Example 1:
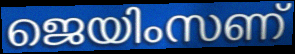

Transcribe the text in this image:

ജെയിംസണ്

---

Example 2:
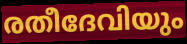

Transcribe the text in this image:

രതീദേവിയും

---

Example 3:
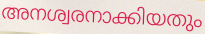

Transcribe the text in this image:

അനശ്വരനാക്കിയതും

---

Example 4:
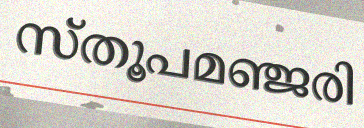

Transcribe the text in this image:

സ്തൂപമഞ്ജരി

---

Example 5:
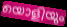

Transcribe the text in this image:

യൊളിയും